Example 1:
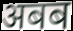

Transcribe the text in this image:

अबब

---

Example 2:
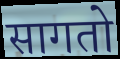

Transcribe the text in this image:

सागतो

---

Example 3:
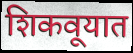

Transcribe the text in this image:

शिकवूयात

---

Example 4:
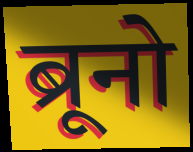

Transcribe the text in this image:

ब्रूनो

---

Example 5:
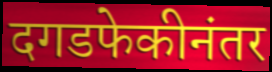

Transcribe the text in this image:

दगडफेकीनंतर